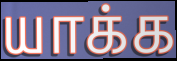
யாக்க